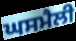
ਘਸਮੈਲੀ